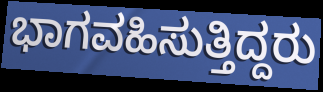
ಭಾಗವಹಿಸುತ್ತಿದ್ದರು